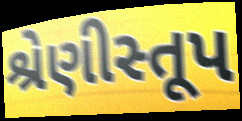
શ્રેણીસ્તૂપ